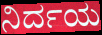
ನಿರ್ದಯ